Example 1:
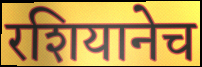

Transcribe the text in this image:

रशियानेच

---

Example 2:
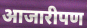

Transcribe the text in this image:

आजारीपण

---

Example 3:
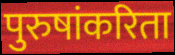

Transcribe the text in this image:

पुरुषांकरिता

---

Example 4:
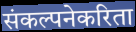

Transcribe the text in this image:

संकल्पनेकरिता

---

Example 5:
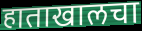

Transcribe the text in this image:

हाताखालचा